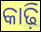
କାଢ଼ି